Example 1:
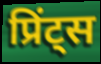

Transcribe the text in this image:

प्रिंट्स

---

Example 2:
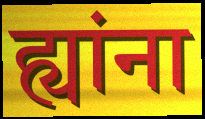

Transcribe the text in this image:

ह्यांना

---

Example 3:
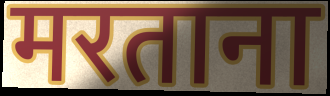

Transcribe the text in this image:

मरताना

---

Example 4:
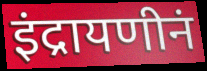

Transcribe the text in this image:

इंद्रायणीनं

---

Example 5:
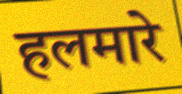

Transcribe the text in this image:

हलमारे